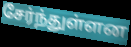
சேர்ந்துள்ளன